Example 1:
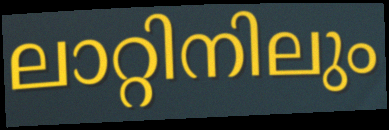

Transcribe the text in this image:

ലാറ്റിനിലും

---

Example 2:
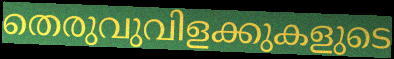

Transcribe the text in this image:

തെരുവുവിളക്കുകളുടെ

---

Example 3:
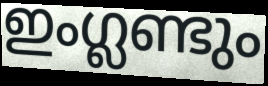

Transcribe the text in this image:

ഇംഗ്ലണ്ടും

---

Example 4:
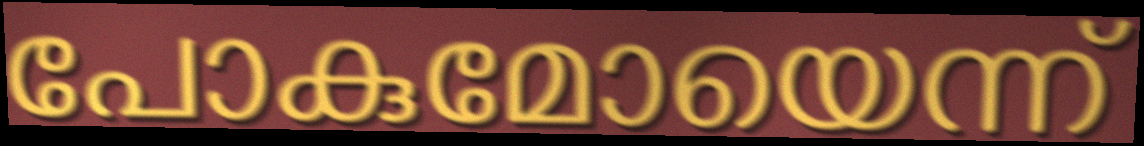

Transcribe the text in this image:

പോകുമോയെന്ന്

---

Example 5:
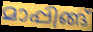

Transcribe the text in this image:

മാപ്പിങ്ങ്